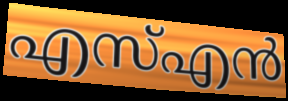
എസ്എൻ